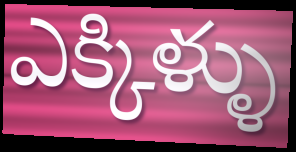
ఎక్కిళ్ళు